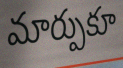
మార్పుకూ